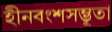
হীনবংশসম্ভূতা